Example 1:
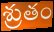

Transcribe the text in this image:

శ్రుతం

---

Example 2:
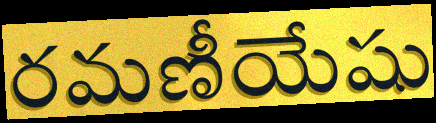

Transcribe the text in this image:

రమణీయేషు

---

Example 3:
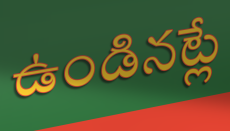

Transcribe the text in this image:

ఉండినట్లే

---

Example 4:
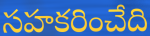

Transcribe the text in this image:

సహకరించేది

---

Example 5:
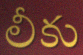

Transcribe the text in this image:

లీకు